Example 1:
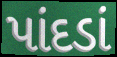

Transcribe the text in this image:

પાંદડાં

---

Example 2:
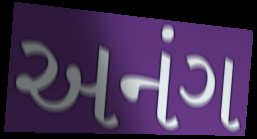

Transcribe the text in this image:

અનંગ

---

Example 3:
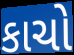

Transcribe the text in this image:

કાચો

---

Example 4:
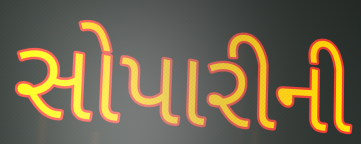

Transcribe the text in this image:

સોપારીની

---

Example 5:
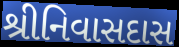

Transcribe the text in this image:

શ્રીનિવાસદાસ